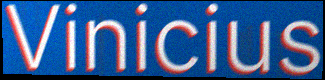
Vinicius